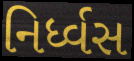
નિર્ધ્વસ